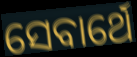
ସେବାର୍ଥେ